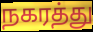
நகரத்து